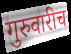
गुरुवारीच